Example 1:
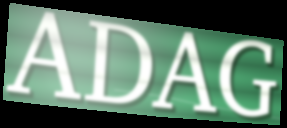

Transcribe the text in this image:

ADAG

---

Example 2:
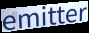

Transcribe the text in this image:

emitter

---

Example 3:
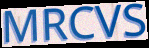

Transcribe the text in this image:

MRCVS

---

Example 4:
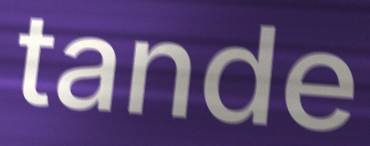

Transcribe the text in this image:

tande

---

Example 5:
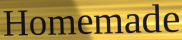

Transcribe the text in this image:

Homemade